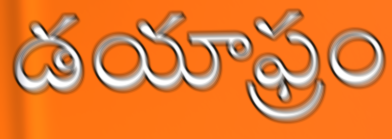
డయాఫ్రం